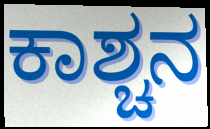
ಕಾಶ್ಚನ